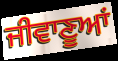
ਜੀਵਾਣੂਆਂ